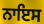
ਨਾਇਸ